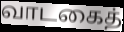
வாடகைத்